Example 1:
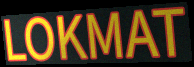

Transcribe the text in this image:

LOKMAT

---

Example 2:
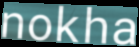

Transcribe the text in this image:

nokha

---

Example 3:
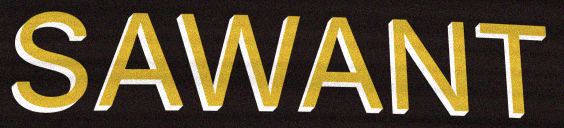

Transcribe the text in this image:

SAWANT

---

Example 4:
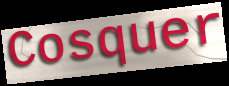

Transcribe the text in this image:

Cosquer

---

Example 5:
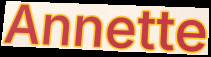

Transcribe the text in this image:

Annette